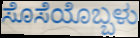
ಸೊಸೆಯೊಬ್ಬಳು